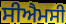
ਸੀਐਮਸੀ